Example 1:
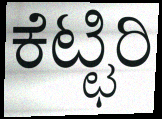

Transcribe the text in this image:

ಕೆಟ್ಟಿರಿ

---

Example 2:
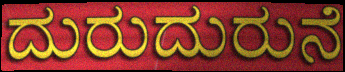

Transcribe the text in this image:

ದುರುದುರುನೆ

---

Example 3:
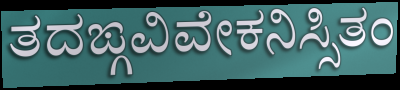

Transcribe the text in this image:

ತದಙ್ಗವಿವೇಕನಿಸ್ಸಿತಂ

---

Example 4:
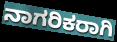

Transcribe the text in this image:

ನಾಗರಿಕರಾಗಿ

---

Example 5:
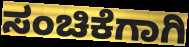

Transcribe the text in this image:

ಸಂಚಿಕೆಗಾಗಿ